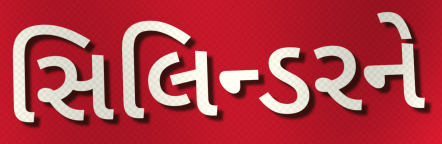
સિલિન્ડરને